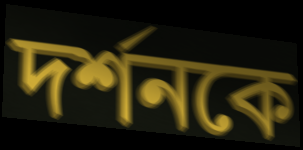
দর্শনকে